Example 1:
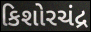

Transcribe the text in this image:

કિશોરચંદ્ર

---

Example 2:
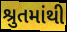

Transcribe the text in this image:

શ્રુતમાંથી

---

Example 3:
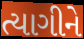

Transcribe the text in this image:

ત્યાગીને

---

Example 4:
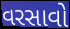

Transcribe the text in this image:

વરસાવો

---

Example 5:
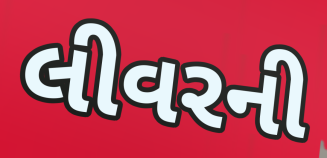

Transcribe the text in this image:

લીવરની